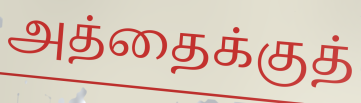
அத்தைக்குத்